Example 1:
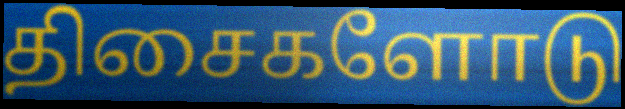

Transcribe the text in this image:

திசைகளோடு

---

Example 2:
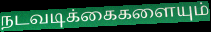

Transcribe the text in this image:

நடவடிக்கைகளையும்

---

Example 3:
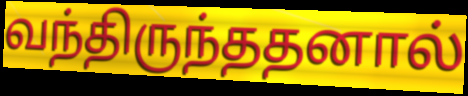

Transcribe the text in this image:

வந்திருந்ததனால்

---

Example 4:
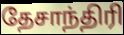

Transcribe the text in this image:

தேசாந்திரி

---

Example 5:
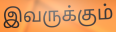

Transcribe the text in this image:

இவருக்கும்